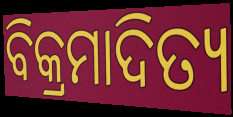
ବିକ୍ରମାଦିତ୍ୟ